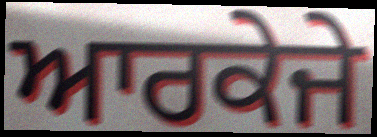
ਆਰਕੇਜੇ